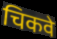
चिकवे